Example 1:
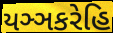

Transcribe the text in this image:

યઞ્ઞકરેહિ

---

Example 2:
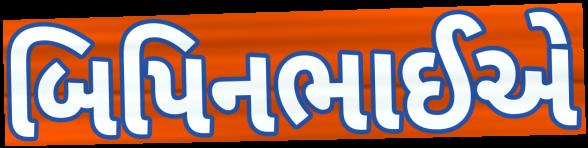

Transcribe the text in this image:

બિપિનભાઈએ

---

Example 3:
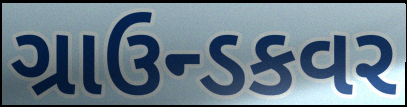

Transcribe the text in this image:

ગ્રાઉન્ડકવર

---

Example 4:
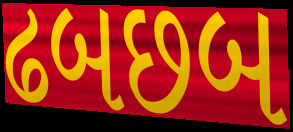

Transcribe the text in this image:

ઢબછબ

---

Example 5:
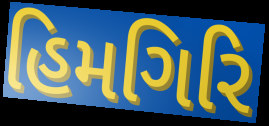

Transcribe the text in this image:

હિમગિરિ